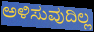
ಅಳಿಸುವುದಿಲ್ಲ